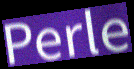
Perle